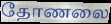
தோணலை